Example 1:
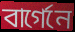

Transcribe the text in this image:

বার্গেনে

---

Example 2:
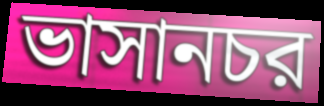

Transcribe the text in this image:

ভাসানচর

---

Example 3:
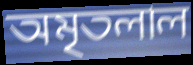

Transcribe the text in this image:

অমৃতলাল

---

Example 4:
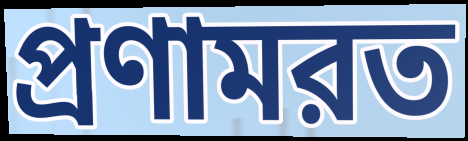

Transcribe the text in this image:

প্রণামরত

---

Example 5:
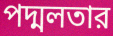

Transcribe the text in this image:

পদ্মলতার